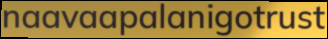
naavaapalanigotrust